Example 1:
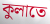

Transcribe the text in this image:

কুলাতে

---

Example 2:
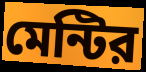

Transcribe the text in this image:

মেন্টির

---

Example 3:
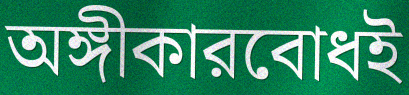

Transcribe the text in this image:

অঙ্গীকারবোধই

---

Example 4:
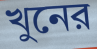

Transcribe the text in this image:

খুনের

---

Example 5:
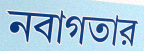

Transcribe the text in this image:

নবাগতার